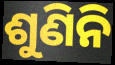
ଶୁଣିନି